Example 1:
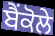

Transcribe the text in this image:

ਬੈਂਕੋਲੇ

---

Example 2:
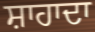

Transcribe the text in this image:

ਸ਼ਾਹਾਦਾ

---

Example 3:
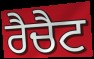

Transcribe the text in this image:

ਰੈਚੈਟ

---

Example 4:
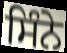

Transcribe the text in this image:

ਸਿੰਨੇ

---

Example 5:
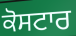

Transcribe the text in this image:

ਕੋਸਟਾਰ